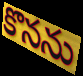
కొనను